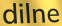
dilne